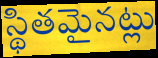
స్థితమైనట్లు